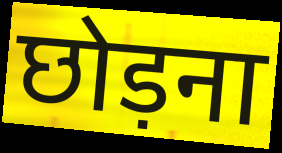
छोड़ना